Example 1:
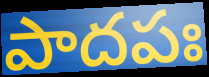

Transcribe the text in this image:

పాదపః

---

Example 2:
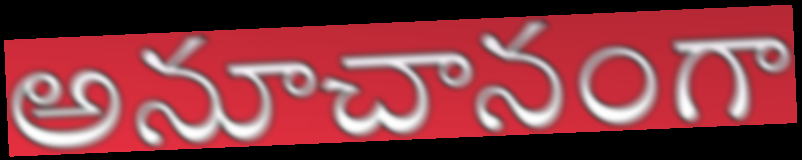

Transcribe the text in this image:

అనూచానంగా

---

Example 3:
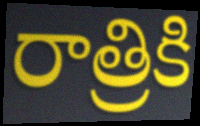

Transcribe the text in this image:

రాత్రికి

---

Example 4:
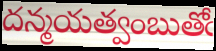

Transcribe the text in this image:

దన్మయత్వంబుతోఁ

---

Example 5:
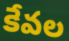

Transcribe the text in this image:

కేవల